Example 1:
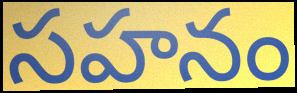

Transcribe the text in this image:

సహనం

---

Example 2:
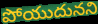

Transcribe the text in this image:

పోయుదునని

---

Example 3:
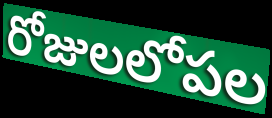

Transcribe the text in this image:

రోజులలోపల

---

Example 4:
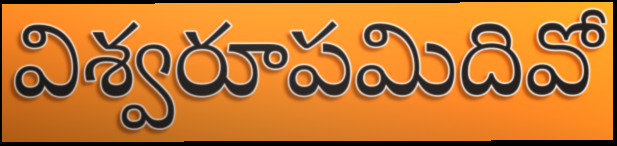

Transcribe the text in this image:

విశ్వరూపమిదివో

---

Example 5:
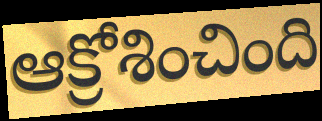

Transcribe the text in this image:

ఆక్రోశించింది